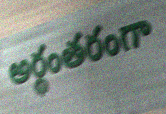
అర్థంతరంగా